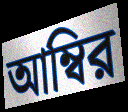
আম্বির